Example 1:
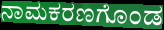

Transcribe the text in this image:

ನಾಮಕರಣಗೊಂಡ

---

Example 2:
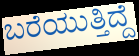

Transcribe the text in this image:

ಬರೆಯುತ್ತಿದ್ದೆ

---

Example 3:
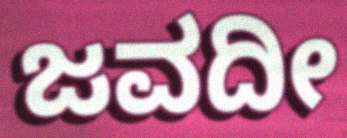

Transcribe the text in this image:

ಜವದೀ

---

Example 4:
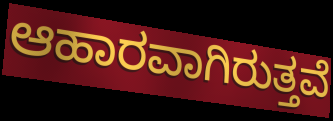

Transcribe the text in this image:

ಆಹಾರವಾಗಿರುತ್ತವೆ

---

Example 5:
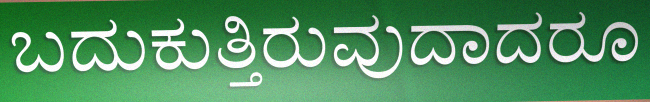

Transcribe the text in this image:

ಬದುಕುತ್ತಿರುವುದಾದರೂ